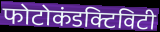
फोटोकंडक्टिविटी